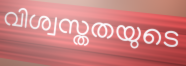
വിശ്വസ്തതയുടെ